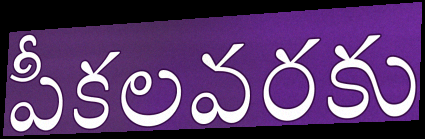
పీకలవరకు